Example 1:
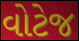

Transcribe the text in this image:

વોટેજ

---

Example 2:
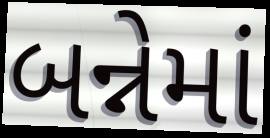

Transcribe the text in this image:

બન્નેમાં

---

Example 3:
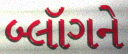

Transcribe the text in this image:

બ્લૉગને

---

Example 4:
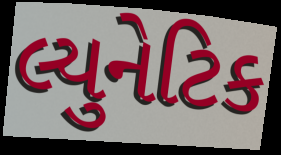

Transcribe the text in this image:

લ્યુનેટિક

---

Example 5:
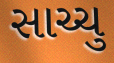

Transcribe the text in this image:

સાચ્ચુ